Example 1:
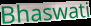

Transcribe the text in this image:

Bhaswati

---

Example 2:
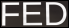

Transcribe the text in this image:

FED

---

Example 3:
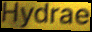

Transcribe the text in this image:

Hydrae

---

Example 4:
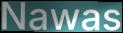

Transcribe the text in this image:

Nawas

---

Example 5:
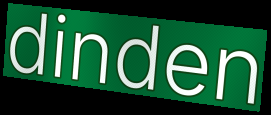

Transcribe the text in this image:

dinden